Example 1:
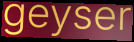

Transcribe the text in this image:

geyser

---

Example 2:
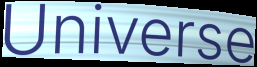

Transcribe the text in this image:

Universe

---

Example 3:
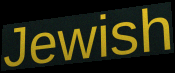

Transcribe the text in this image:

Jewish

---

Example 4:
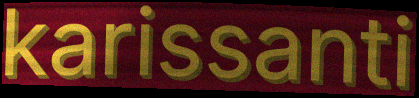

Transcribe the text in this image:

karissanti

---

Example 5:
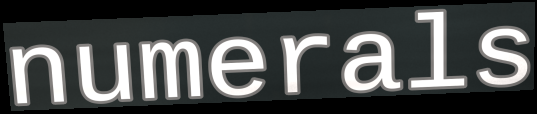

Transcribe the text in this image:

numerals